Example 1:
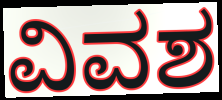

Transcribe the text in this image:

ವಿವಶ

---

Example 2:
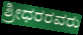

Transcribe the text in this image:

ಶ್ರೀಧರರವರು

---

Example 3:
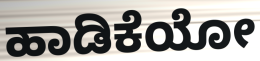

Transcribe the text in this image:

ಹಾಡಿಕೆಯೋ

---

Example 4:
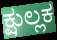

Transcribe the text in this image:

ಕ್ಷುಲ್ಲಕ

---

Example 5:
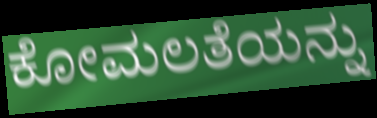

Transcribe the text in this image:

ಕೋಮಲತೆಯನ್ನು